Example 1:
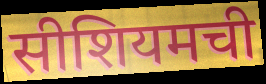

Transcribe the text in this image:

सीशियमची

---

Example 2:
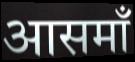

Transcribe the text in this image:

आसमाँ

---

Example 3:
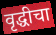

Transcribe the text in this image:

वृद्धीचा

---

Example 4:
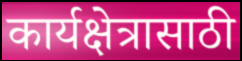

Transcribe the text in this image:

कार्यक्षेत्रासाठी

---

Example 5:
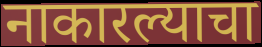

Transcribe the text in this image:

नाकारल्याचा